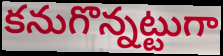
కనుగొన్నట్టుగా